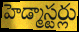
హెడ్మాస్టర్లు